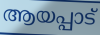
ആയപ്പാട്